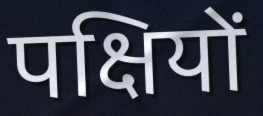
पक्षियों